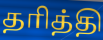
தரித்தி